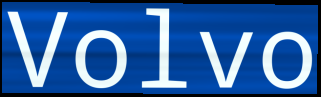
Volvo